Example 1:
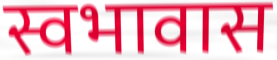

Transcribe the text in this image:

स्वभावास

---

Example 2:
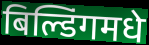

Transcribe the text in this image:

बिल्डिंगमधे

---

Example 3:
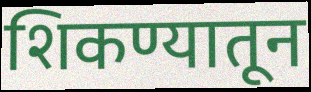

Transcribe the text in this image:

शिकण्यातून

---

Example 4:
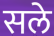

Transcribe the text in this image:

सले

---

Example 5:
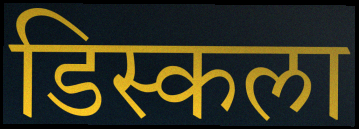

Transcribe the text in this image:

डिस्कला